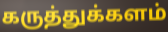
கருத்துக்களம்